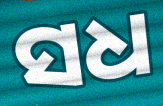
ସଧ